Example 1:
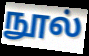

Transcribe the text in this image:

நூல்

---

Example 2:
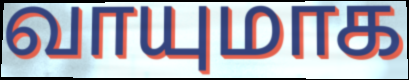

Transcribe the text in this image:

வாயுமாக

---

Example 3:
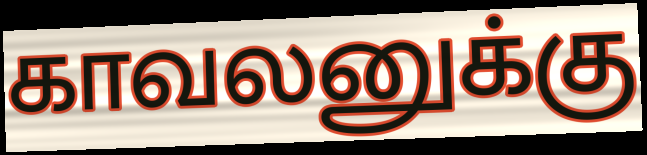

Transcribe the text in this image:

காவலனுக்கு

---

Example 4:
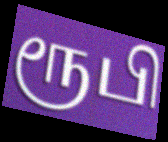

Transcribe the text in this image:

ரூபி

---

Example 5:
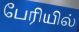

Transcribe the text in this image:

பேரியில்